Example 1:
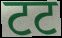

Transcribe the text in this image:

टट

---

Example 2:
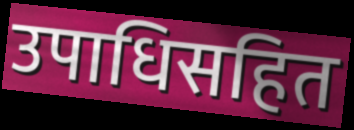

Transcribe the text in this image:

उपाधिसहित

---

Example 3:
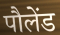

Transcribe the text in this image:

पौलेंड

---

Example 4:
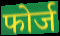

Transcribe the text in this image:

फोर्ज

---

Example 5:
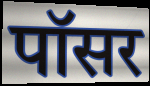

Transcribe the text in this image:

पॉसर